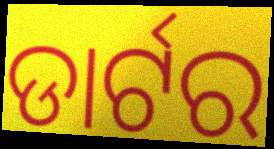
ଡାର୍ଟର